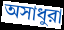
অসাধুরা